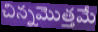
చిన్నమొత్తమే